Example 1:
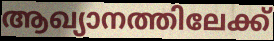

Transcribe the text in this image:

ആഖ്യാനത്തിലേക്ക്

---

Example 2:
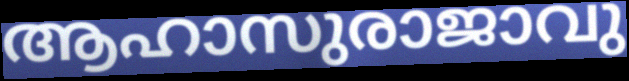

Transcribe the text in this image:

ആഹാസുരാജാവു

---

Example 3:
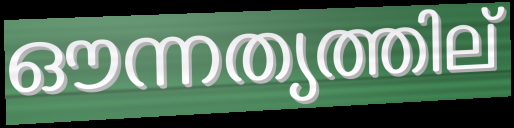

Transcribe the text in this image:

ഔന്നത്യത്തില്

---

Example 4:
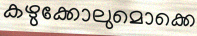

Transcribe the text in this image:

കഴുക്കോലുമൊക്കെ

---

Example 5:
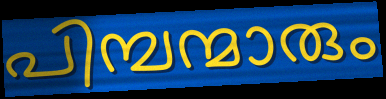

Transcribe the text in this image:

പിമ്പന്മാരും